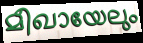
മീഖായേലും